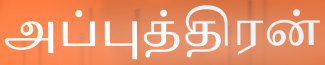
அப்புத்திரன்